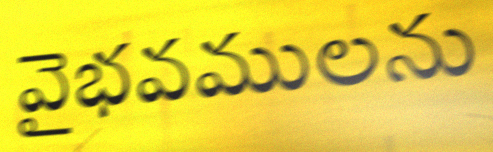
వైభవములను